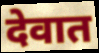
देवात